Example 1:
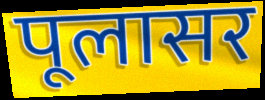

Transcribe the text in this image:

पूलासर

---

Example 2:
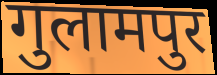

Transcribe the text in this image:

गुलामपुर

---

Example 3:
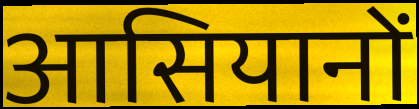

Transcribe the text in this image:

आसियानों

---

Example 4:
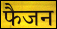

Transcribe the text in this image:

फैजन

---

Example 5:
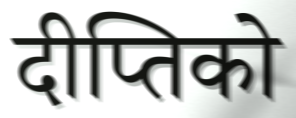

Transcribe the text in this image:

दीप्तिको